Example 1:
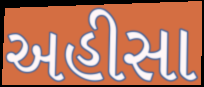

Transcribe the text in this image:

અહીસા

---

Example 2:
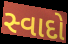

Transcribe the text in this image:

સ્વાદો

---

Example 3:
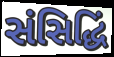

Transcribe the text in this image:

સંસિદ્ધિં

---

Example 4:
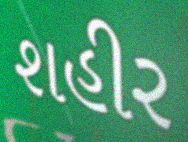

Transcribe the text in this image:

શહીર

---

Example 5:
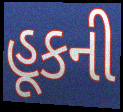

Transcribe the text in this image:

હૂકની